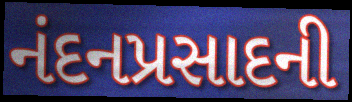
નંદનપ્રસાદની